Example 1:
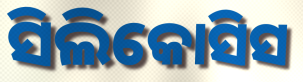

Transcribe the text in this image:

ସିଲିକୋସିସ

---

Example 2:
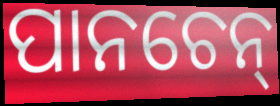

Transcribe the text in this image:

ପାନଚେନ୍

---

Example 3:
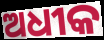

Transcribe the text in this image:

ଅଧୀକ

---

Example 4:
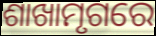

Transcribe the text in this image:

ଶାଖାମୃଗରେ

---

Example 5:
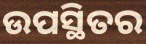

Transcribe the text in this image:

ଉପସ୍ଥିତର